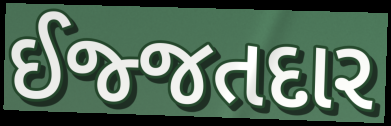
ઈજ્જતદાર